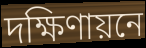
দক্ষিণায়নে